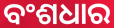
ବଂଶଧାର